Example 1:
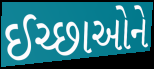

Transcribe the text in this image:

ઈચ્છાઓને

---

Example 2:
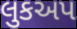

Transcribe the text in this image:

લુકઅપ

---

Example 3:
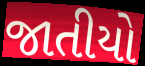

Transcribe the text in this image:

જાતીયો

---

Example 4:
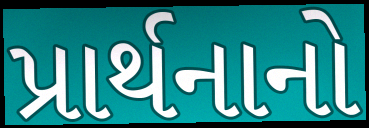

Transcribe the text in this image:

પ્રાર્થનાનો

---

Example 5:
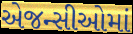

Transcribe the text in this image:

એજન્સીઓમાં